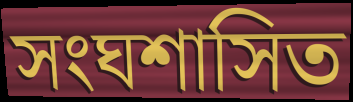
সংঘশাসিত